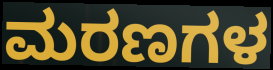
ಮರಣಗಳ